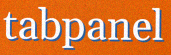
tabpanel